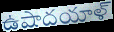
ఉషాదయాళ్